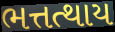
ભત્તત્થાય